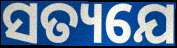
ସତ୍ୟଯେ